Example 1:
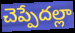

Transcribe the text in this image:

చెప్పేదల్లా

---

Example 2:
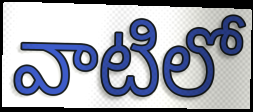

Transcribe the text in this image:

వాటిలో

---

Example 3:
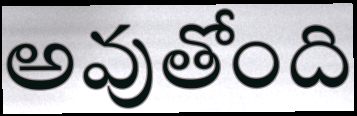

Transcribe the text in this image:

అవుతోంది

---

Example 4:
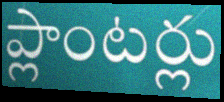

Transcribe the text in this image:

ప్లాంటర్లు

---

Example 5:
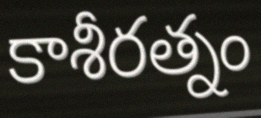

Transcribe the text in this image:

కాశీరత్నం